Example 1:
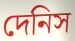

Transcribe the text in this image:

দেনিস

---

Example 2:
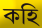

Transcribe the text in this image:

কহি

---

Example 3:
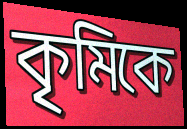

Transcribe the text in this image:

কৃমিকে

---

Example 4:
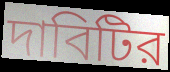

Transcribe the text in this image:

দাবিটির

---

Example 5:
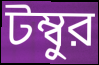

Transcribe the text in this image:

টম্বুর